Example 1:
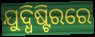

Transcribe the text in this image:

ଯୁଦ୍ଧିଷ୍ଟିରରେ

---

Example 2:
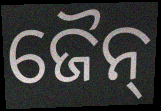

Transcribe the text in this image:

ଜୈନ୍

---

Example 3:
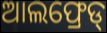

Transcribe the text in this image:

ଆଲଫ୍ରେଡ୍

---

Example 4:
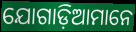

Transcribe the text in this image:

ଯୋଗାଡ଼ିଆମାନେ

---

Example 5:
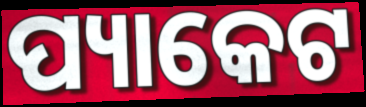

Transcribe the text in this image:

ପ୍ୟାକେଟ